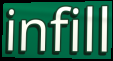
infill